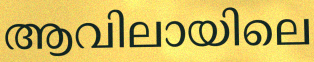
ആവിലായിലെ